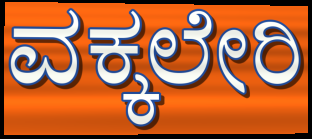
ವಕ್ಕಲೇರಿ